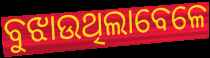
ବୁଝାଉଥିଲାବେଳେ